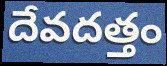
దేవదత్తం